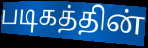
படிகத்தின்